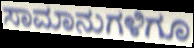
ಸಾಮಾನುಗಳಿಗೂ